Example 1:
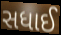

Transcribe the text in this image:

સધાઈ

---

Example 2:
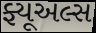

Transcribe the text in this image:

ફ્યૂઅલ્સ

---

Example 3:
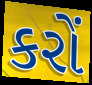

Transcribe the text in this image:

કરોં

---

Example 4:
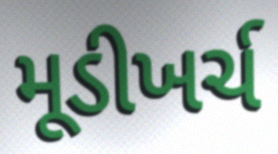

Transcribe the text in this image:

મૂડીખર્ચ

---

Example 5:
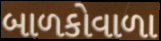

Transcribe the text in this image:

બાળકોવાળા